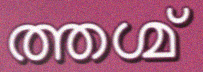
ത്തഗ്മ്